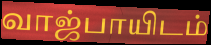
வாஜ்பாயிடம்